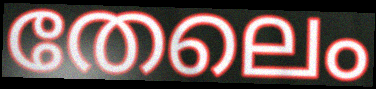
തേലെം